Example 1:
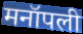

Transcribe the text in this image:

मनॉपली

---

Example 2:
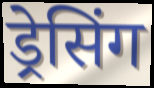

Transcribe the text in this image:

ड्रेसिंग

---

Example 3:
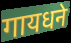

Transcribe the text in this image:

गायधने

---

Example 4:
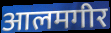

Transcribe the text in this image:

आलमगीर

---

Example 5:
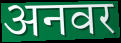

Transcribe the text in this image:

अनवर